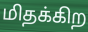
மிதக்கிற